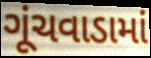
ગૂંચવાડામાં